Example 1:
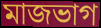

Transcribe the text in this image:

মাজভাগ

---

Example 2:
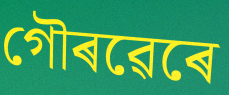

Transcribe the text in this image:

গৌৰৱেৰে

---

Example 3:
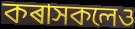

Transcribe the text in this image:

কৰাসকলেও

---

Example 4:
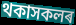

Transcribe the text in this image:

থকাসকলৰ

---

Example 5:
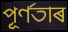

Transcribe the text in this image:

পূৰ্ণতাৰ